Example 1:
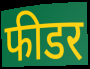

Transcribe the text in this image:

फीडर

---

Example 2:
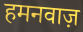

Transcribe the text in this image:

हमनवाज़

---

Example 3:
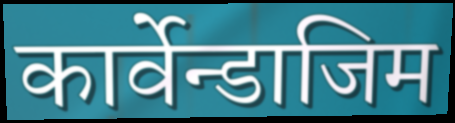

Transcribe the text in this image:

कार्वेन्डाजिम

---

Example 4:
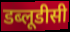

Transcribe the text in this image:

डब्लूडीसी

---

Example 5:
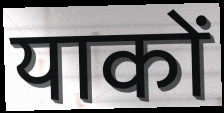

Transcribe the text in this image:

याकों